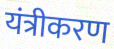
यंत्रीकरण